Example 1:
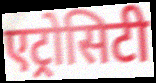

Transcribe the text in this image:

एट्रोसिटी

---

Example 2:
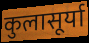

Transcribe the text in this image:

कुलासूर्या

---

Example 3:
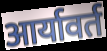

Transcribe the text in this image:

आर्यावर्त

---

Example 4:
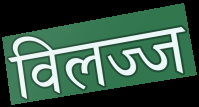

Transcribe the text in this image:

विलज्ज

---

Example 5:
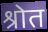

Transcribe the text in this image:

श्रोत